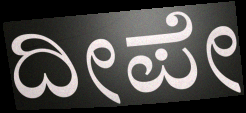
ದೀಪೇ